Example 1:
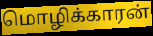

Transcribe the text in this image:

மொழிக்காரன்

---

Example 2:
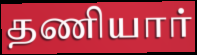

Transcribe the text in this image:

தணியார்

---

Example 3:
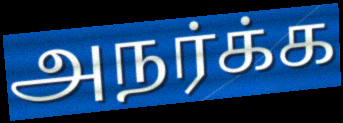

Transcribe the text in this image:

அநர்க்க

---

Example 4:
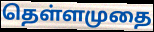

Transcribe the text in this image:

தெள்ளமுதை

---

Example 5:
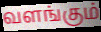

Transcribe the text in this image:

வளங்கும்